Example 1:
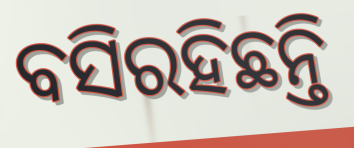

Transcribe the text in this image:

ବସିରହିଛନ୍ତି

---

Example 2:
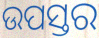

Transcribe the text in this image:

ଉପସ୍ତର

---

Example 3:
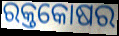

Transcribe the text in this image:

ରକ୍ତକୋଷର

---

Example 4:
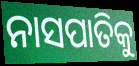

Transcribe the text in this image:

ନାସପାତିକୁ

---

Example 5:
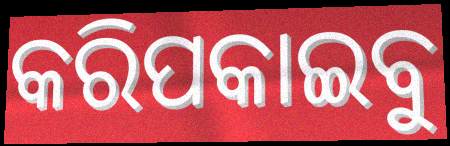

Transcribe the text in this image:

କରିପକାଇବୁ